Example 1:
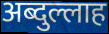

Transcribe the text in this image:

अब्दुल्लाह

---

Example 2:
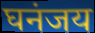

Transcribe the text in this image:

घनंजय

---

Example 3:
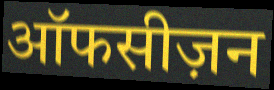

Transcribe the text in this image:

ऑफसीज़न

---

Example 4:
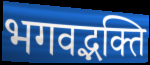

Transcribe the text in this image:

भगवद्भक्ति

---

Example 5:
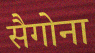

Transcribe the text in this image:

सैगोना